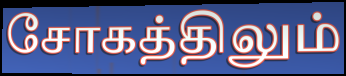
சோகத்திலும்